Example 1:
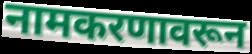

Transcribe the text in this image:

नामकरणावरून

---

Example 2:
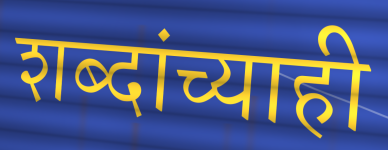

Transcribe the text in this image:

शब्दांच्याही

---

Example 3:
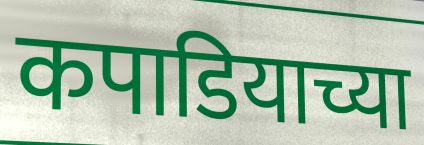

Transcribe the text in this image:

कपाडियाच्या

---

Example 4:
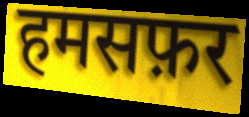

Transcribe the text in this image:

हमसफ़र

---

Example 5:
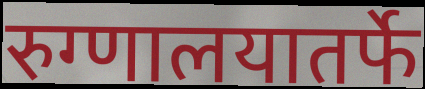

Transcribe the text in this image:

रुग्णालयातर्फे